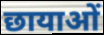
छायाओं